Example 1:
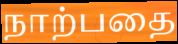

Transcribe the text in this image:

நாற்பதை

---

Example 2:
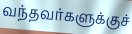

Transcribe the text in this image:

வந்தவர்களுக்குச்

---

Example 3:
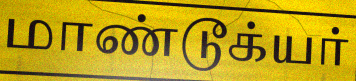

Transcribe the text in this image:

மாண்டூக்யர்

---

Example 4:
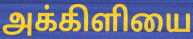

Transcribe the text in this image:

அக்கிளியை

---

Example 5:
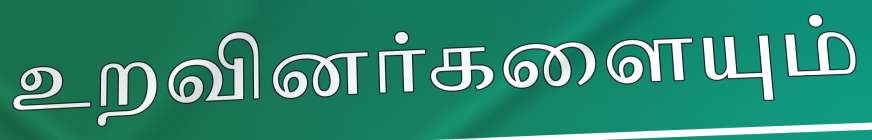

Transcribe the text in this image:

உறவினர்களையும்